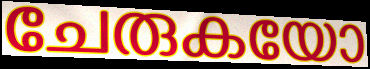
ചേരുകയോ